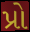
પ્રો